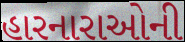
હારનારાઓની